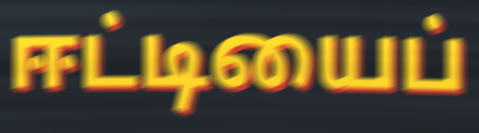
ஈட்டியைப்